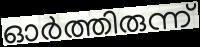
ഓർത്തിരുന്ന്